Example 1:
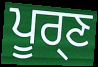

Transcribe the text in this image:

ਪੂਰ੍ਣ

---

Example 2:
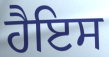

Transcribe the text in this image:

ਹੈਇਸ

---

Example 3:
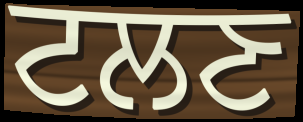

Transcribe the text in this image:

ਟਲਣ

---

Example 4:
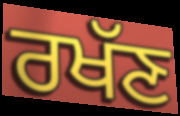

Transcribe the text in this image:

ਰਖੱਣ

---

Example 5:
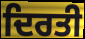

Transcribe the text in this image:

ਦਿਰਤੀ